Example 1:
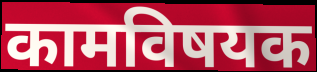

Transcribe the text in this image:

कामविषयक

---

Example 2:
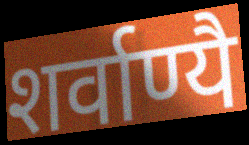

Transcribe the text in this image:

शर्वाण्यै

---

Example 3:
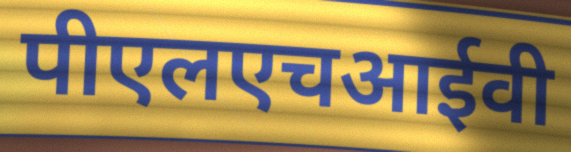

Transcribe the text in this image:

पीएलएचआईवी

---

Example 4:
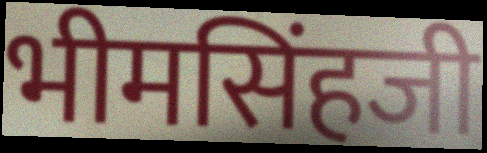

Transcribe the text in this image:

भीमसिंहजी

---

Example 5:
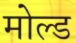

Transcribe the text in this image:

मोल्ड